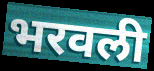
भरवली